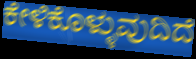
ಕೇಳಿಕೊಳ್ಳುವುದಿದೆ